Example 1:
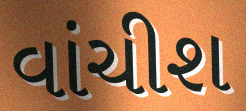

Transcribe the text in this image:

વાંચીશ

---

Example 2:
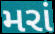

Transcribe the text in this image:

મરાં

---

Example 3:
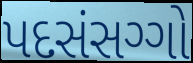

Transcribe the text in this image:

પદસંસગ્ગો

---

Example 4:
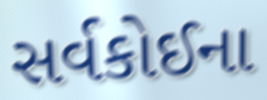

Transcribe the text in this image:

સર્વકોઈના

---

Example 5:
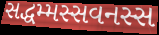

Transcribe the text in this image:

સદ્ધમ્મસ્સવનસ્સ